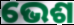
ଭେଶ